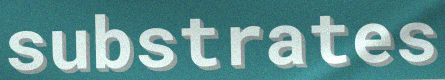
substrates